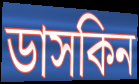
ডাসকিন